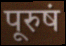
पूरुषं